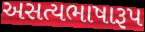
અસત્યભાષારૂપ